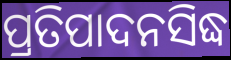
ପ୍ରତିପାଦନସିଦ୍ଧ